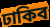
ঢাকিব